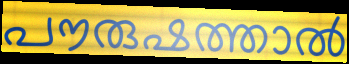
പൗരുഷത്താൽ